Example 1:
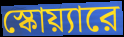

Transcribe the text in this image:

স্কোয়্যারে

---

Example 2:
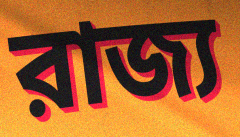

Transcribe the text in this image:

রাজ্য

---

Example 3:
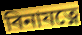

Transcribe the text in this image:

বিনাযত্নে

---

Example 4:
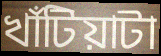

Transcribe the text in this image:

খাঁটিয়াটা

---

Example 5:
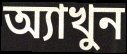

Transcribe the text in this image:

অ্যাখুন